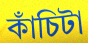
কাঁচিটা